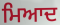
ਮਿਆਦ